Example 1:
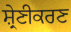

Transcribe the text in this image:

ਸ਼੍ਰੇਣੀਕਰਣ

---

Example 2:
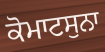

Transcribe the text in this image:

ਕੋਮਾਟਸੁਨਾ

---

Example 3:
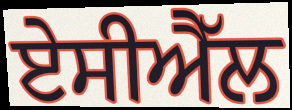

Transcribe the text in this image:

ਏਸੀਐੱਲ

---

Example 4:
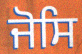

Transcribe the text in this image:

ਜੋਸਿ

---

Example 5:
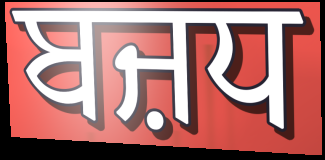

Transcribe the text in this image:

ਬਜ਼ਧ